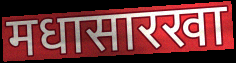
मधासारखा